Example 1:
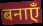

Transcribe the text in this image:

बनाएँ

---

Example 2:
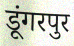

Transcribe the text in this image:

डूंगरपुर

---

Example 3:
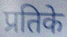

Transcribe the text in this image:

प्रतिके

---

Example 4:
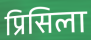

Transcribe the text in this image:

प्रिसिला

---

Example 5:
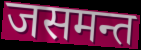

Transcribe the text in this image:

जसमन्त